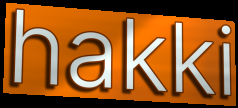
hakki